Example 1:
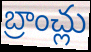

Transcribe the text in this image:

బ్రాంచ్లు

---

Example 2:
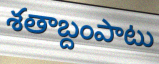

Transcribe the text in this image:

శతాబ్దంపాటు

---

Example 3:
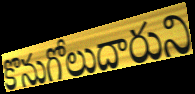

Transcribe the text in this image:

కొనుగోలుదారుని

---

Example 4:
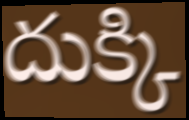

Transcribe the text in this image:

దుక్కి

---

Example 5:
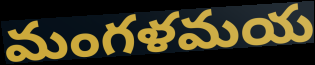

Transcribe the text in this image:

మంగళమయ